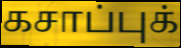
கசாப்புக்